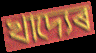
খাদ্যেৰ